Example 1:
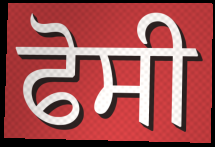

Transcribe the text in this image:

ਫੋਸੀ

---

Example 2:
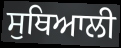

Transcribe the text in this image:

ਸੁਥਿਆਲੀ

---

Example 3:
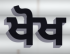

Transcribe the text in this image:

ਖੋਖ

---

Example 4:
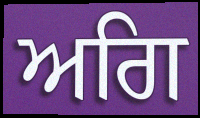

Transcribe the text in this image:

ਅਗਿ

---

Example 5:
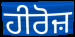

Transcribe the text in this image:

ਹੀਰੋਜ਼